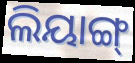
ଲିୟାଙ୍ଗ୍